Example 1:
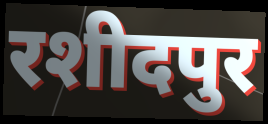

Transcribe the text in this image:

रशीदपुर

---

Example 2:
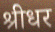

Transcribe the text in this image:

श्रीधर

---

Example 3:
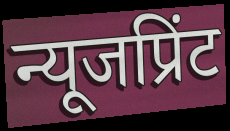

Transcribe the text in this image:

न्यूजप्रिंट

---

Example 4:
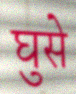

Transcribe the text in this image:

घुसे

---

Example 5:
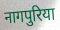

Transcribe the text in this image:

नागपुरिया